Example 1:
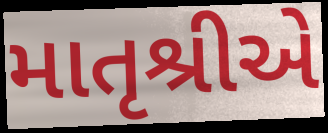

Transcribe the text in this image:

માતૃશ્રીએ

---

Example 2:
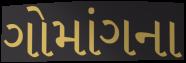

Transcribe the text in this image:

ગોમાંગના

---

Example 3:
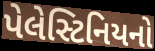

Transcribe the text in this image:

પેલેસ્ટિનિયનો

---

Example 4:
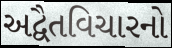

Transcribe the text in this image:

અદ્વૈતવિચારનો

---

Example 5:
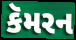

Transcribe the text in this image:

કૅમરન